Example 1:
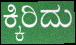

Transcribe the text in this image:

ಕ್ಕಿರಿದು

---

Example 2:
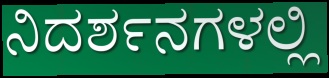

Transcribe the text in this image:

ನಿದರ್ಶನಗಳಲ್ಲಿ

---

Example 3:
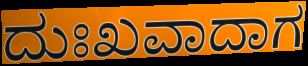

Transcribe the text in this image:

ದುಃಖವಾದಾಗ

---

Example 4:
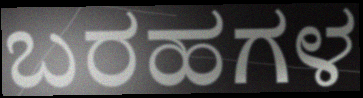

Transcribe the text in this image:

ಬರಹಗಳ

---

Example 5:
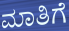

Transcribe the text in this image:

ಮಾತಿಗೆ